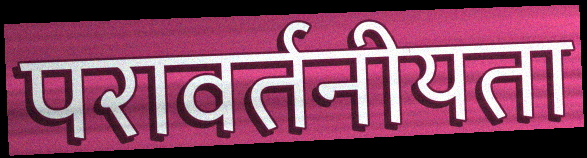
परावर्तनीयता